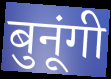
बुनूंगी